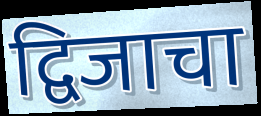
द्विजाचा